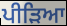
ਪੀੜਿਆ